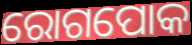
ରୋଗପୋକ